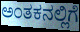
ಅಂತಕನಲ್ಲಿಗೆ